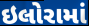
ઇલોરામાં